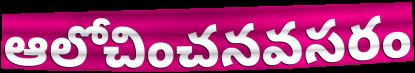
ఆలోచించనవసరం